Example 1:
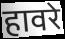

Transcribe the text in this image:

हावरे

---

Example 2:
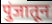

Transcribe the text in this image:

पुंजातून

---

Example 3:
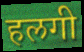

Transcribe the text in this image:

हलगी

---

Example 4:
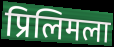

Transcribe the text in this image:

प्रिलिमला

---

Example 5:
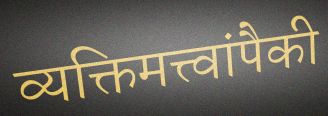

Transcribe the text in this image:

व्यक्तिमत्त्वांपैकी